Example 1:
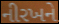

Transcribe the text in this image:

નીરખને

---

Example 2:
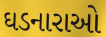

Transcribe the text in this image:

ઘડનારાઓ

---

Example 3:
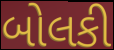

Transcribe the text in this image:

બોલકી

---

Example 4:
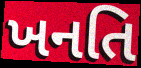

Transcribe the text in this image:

ખનતિ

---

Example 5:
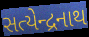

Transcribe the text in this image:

સત્યેન્દ્રનાથ